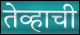
तेव्हाची